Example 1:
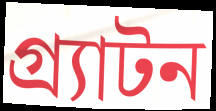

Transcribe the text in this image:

গ্র্যাটন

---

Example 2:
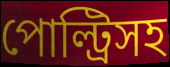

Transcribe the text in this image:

পোল্ট্রিসহ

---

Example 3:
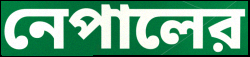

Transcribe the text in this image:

নেপালের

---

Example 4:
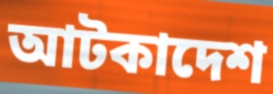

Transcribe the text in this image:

আটকাদেশ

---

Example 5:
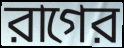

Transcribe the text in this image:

রাগের